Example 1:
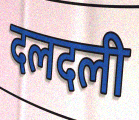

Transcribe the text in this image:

दलदली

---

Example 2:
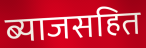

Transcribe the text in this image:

ब्याजसहित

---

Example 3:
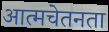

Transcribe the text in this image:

आत्मचेतनता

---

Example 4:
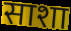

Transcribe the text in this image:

साशा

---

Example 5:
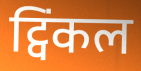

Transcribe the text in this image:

ट्विंकल